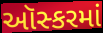
ઑસ્કરમાં